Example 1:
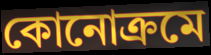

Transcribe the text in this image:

কোনোক্রমে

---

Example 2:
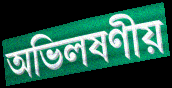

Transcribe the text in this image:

অভিলষণীয়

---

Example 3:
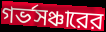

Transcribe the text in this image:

গর্ভসঞ্চারের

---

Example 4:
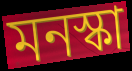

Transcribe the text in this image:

মনস্কা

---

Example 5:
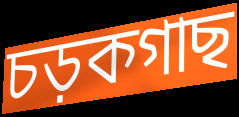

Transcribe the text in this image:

চড়কগাছ